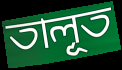
তালূত